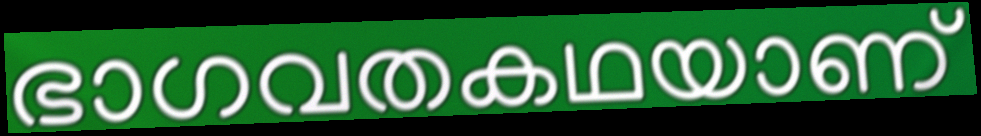
ഭാഗവതകഥയാണ്